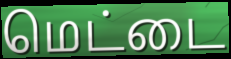
மெட்டை